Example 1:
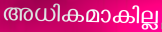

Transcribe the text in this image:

അധികമാകില്ല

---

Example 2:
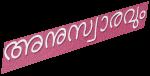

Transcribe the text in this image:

അനുസ്വാരവും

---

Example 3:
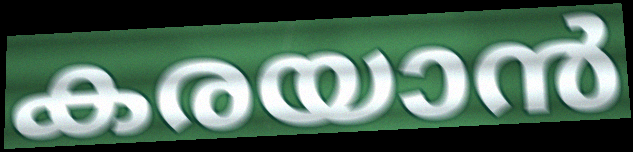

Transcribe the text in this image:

കരയാൻ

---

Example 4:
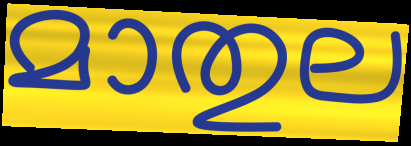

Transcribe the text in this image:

മാതുല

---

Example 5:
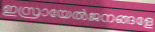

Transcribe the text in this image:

ഇസ്രായേൽജനങ്ങളേ